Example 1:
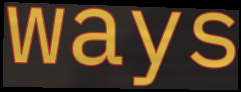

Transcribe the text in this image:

ways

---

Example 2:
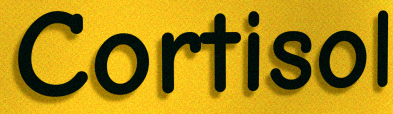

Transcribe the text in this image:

Cortisol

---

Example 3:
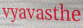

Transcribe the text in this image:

vyavasthe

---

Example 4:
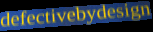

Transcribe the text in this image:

defectivebydesign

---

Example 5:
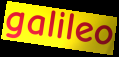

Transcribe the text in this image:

galileo